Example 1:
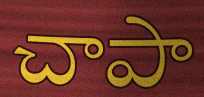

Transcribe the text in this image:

చాపా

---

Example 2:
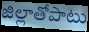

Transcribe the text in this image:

జిల్లాతోపాటు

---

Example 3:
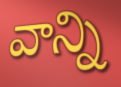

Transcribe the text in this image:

వాన్ని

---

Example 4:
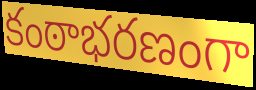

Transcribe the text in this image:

కంఠాభరణంగా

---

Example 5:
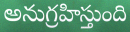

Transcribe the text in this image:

అనుగ్రహిస్తుంది